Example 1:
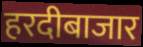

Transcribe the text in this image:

हरदीबाजार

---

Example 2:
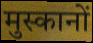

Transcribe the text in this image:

मुस्कानों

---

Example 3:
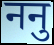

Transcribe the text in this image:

ननु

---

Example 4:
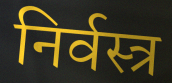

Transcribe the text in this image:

निर्वस्‍त्र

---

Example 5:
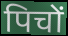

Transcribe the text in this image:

पिचों